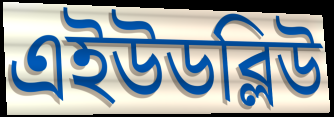
এইউডব্লিউ